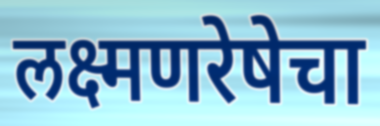
लक्ष्मणरेषेचा